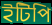
ইটিপি